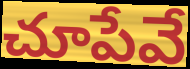
చూపేవే